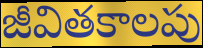
జీవితకాలపు